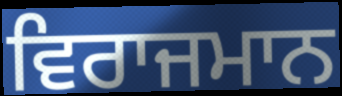
ਵਿਰਾਜਮਾਨ